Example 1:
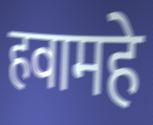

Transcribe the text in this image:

हवामहे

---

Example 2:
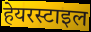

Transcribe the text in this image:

हेयरस्टाइल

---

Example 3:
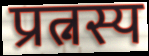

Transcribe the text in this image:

प्रत्नस्य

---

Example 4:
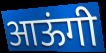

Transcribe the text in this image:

आऊंगी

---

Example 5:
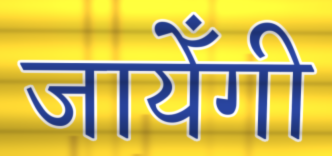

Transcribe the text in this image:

जायेँगी